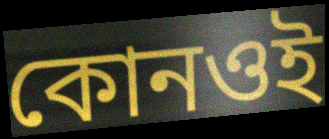
কোনওই